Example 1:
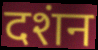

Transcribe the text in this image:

दशंन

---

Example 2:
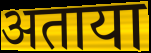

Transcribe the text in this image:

अताया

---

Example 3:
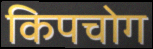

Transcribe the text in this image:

किपचोग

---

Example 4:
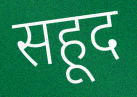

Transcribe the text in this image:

सहूद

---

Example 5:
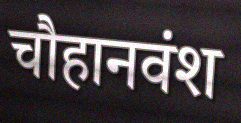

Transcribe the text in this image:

चौहानवंश